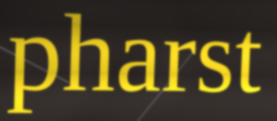
pharst